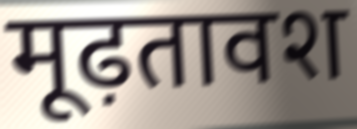
मूढ़तावश